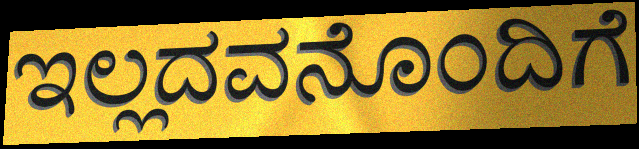
ಇಲ್ಲದವನೊಂದಿಗೆ